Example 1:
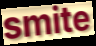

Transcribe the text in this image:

smite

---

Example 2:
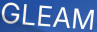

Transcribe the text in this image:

GLEAM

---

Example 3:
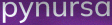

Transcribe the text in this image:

pynursa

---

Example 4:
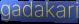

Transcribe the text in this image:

gadakari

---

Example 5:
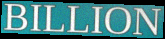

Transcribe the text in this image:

BILLION